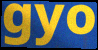
gyo